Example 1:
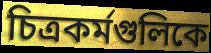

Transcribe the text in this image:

চিত্রকর্মগুলিকে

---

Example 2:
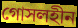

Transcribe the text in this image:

গোসলহীন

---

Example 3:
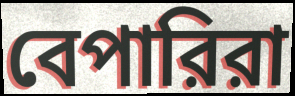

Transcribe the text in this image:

বেপারিরা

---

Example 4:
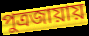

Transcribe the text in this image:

পুত্রজায়ায়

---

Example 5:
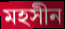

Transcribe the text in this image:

মহসীন